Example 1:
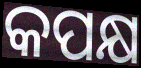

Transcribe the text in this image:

କପକ୍ଷ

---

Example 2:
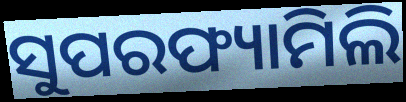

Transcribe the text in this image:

ସୁପରଫ୍ୟାମିଲି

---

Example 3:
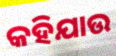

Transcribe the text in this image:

କହିଯାଉ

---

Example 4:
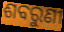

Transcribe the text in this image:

ଶବରୁଣୀ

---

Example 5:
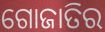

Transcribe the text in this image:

ଗୋଜାତିର